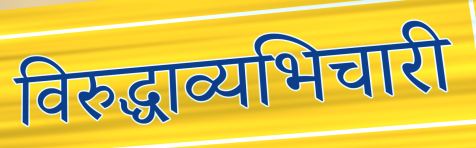
विरुद्धाव्यभिचारी